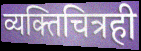
व्यक्तिचित्रही